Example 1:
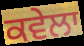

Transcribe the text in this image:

ਕਵੇਲਾ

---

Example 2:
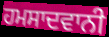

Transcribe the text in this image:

ਹਮਸਾਦਵਾਨੀ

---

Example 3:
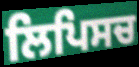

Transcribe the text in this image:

ਲਿਪਿਸਚ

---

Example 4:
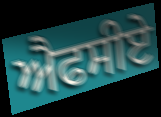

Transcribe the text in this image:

ਐਫਸੀਏ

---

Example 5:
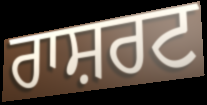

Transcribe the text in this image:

ਰਾਸ਼ਰਟ